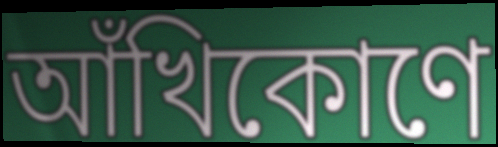
আঁখিকোণে